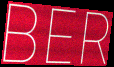
BER